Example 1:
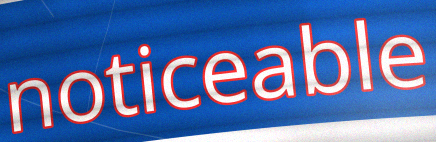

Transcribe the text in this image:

noticeable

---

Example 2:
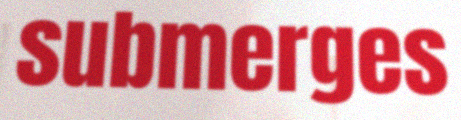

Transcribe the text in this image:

submerges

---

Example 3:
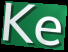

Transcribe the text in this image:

Ke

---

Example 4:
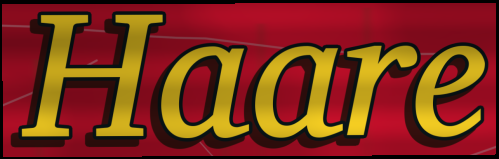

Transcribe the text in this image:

Haare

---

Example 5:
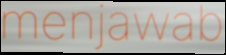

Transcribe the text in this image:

menjawab